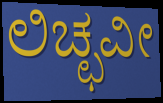
ಲಿಚ್ಛವೀ